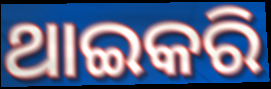
ଥାଇକରି